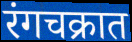
रंगचक्रात